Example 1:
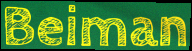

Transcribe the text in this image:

Beiman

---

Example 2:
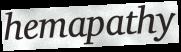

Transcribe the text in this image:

hemapathy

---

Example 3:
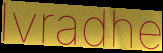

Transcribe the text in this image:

lvradhe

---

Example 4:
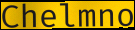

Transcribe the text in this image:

Chelmno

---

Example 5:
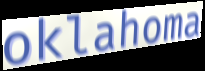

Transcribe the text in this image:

oklahoma